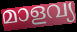
മാളവ്യ